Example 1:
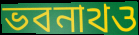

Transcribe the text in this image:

ভবনাথও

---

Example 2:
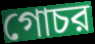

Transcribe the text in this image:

গোচর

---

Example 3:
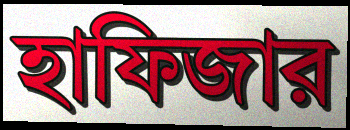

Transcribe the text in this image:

হাফিজার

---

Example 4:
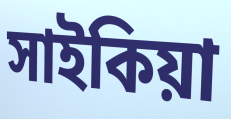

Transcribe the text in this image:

সাইকিয়া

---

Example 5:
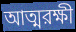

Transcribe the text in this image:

আত্মরক্ষী